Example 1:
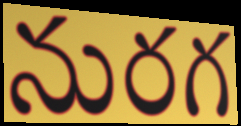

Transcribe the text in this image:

నురగ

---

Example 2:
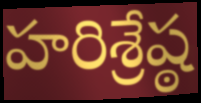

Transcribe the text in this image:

హరిశ్రేష్ఠ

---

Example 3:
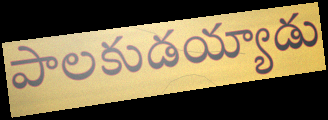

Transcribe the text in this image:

పాలకుడయ్యాడు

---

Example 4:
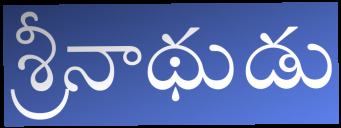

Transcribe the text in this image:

శ్రీనాథుడు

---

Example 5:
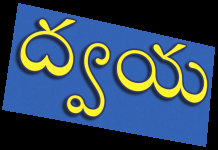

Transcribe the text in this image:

ద్వయ